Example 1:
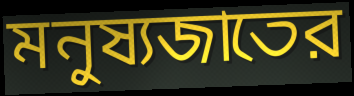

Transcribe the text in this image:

মনুষ্যজাতের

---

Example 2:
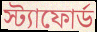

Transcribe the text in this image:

স্ট্যাফোর্ড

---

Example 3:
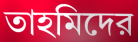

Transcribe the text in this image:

তাহমিদের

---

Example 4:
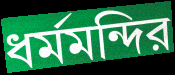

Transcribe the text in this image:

ধর্মমন্দির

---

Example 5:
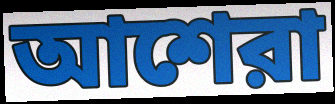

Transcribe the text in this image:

আশেরা